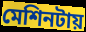
মেশিনটায়